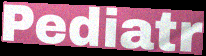
Pediatr